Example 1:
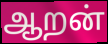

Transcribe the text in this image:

ஆறன்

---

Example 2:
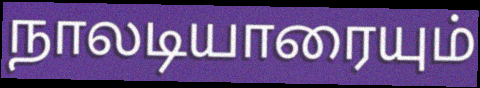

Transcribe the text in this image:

நாலடியாரையும்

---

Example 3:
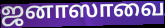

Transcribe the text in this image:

ஜனாஸாவை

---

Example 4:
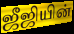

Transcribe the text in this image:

ஜீஜியின்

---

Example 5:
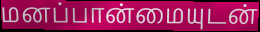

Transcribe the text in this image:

மனப்பான்மையுடன்